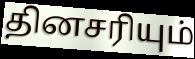
தினசரியும்